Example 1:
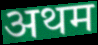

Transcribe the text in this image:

अथम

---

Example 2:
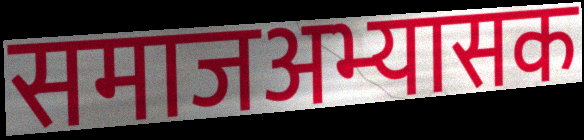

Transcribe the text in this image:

समाजअभ्यासक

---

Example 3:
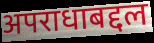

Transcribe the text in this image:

अपराधाबद्दल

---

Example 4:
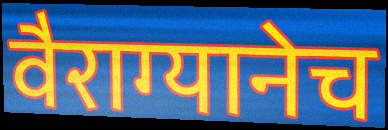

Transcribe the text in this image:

वैराग्यानेच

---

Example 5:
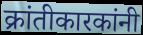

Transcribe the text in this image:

क्रांतीकारकांनी